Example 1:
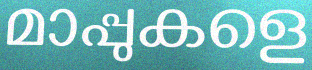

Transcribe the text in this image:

മാപ്പുകളെ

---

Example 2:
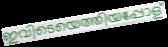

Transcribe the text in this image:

ഇവിടെയെത്തിയപ്പോള്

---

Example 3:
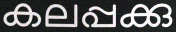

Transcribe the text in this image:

കലപ്പക്കു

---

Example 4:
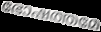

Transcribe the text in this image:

ഭോഷത്തമേ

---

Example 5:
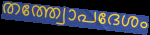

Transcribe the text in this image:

തത്ത്വോപദേശം